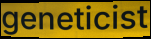
geneticist